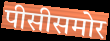
पीसीसमोर